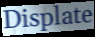
Displate